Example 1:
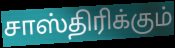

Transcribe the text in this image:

சாஸ்திரிக்கும்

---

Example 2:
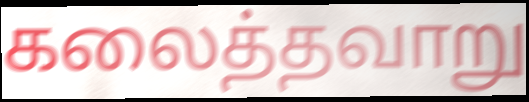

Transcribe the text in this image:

கலைத்தவாறு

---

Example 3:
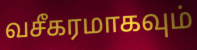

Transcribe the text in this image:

வசீகரமாகவும்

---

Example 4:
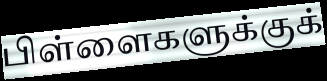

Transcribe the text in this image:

பிள்ளைகளுக்குக்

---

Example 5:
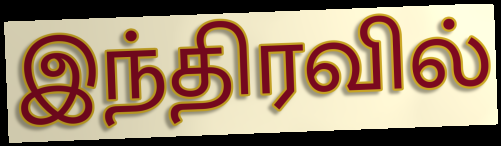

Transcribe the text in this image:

இந்திரவில்